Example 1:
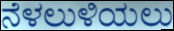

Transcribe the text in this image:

ನೆಳಲುಳಿಯಲು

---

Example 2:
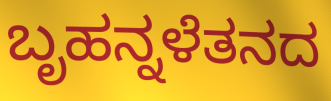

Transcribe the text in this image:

ಬೃಹನ್ನಳೆತನದ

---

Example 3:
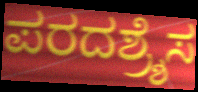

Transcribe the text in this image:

ಪರದಶ್ರ್ಶೆಸ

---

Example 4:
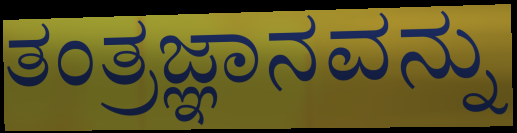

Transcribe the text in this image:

ತಂತ್ರಜ್ಞಾನವನ್ನು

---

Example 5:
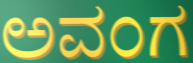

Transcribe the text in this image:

ಅವಂಗ